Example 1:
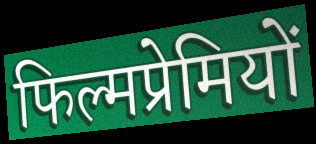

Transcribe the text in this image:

फिल्मप्रेमियों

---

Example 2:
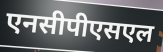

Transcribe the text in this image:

एनसीपीएसएल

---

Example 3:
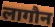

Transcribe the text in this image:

लागौन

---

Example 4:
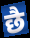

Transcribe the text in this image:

छै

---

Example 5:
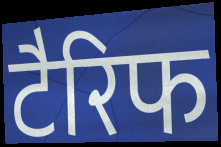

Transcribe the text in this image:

टैरिफ